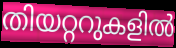
തിയറ്ററുകളിൽ